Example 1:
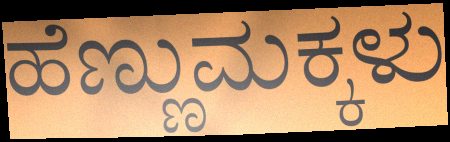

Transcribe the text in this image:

ಹೆಣ್ಣುಮಕ್ಕಳು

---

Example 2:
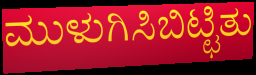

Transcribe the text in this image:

ಮುಳುಗಿಸಿಬಿಟ್ಟಿತು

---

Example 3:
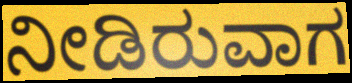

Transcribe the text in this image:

ನೀಡಿರುವಾಗ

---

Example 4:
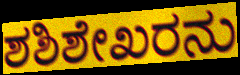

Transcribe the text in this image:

ಶಶಿಶೇಖರನು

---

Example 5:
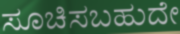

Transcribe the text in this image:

ಸೂಚಿಸಬಹುದೇ